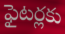
ఫైటర్లకు